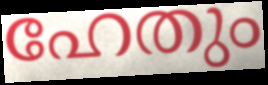
ഹേതും